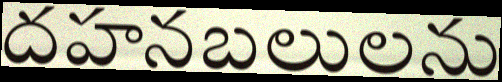
దహనబలులను